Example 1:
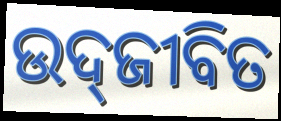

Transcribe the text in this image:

ଉଦ୍‍ଜୀବିତ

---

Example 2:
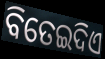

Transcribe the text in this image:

ବିତେଇଦିଏ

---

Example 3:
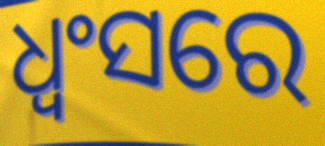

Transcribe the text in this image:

ଧ୍ଵଂସରେ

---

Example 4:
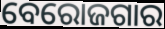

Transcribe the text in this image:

ବେରୋଜଗାର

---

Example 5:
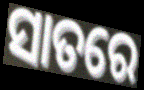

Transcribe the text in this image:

ସାତରେ